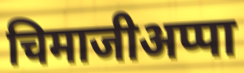
चिमाजीअप्पा